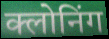
क्‍लोनिंग